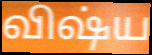
விஷ்ய